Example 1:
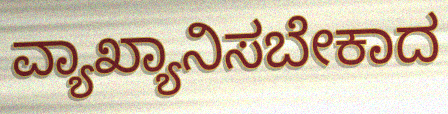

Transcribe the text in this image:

ವ್ಯಾಖ್ಯಾನಿಸಬೇಕಾದ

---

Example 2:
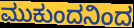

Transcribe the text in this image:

ಮುಕುಂದನಿಂದ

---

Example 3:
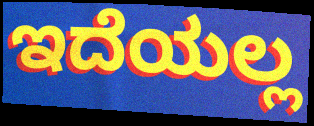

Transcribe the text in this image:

ಇದೆಯಲ್ಲ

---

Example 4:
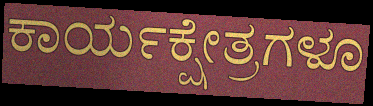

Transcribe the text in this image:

ಕಾರ್ಯಕ್ಷೇತ್ರಗಳೂ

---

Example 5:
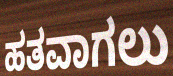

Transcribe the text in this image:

ಹತವಾಗಲು